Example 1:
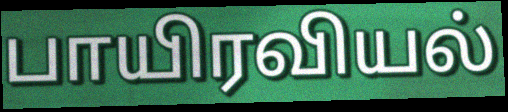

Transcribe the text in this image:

பாயிரவியல்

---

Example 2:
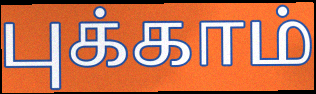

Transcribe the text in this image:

புக்காம்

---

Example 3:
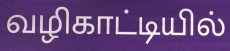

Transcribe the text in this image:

வழிகாட்டியில்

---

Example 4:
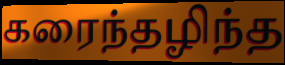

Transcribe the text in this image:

கரைந்தழிந்த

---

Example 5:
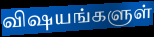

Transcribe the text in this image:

விஷயங்களுள்